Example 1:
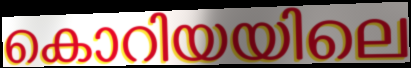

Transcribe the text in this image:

കൊറിയയിലെ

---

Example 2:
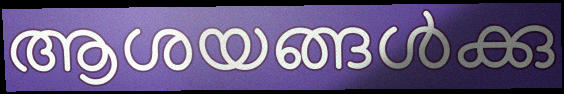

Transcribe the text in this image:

ആശയങ്ങൾക്കു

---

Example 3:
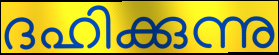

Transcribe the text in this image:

ദഹിക്കുന്നു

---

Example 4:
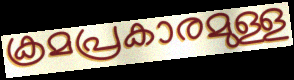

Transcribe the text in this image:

ക്രമപ്രകാരമുള്ള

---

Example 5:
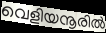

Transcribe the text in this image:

വെളിയനൂരിൽ